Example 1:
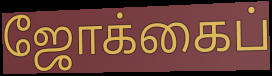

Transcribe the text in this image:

ஜோக்கைப்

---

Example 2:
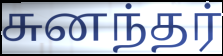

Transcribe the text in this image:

சுனந்தர்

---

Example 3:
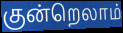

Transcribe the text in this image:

குன்றெலாம்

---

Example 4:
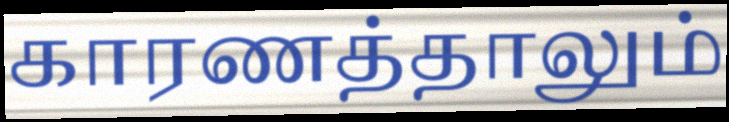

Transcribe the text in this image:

காரணத்தாலும்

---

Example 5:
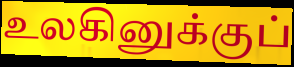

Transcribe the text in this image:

உலகினுக்குப்